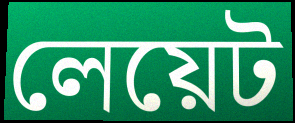
লেয়েট